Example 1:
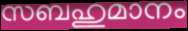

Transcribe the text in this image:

സബഹുമാനം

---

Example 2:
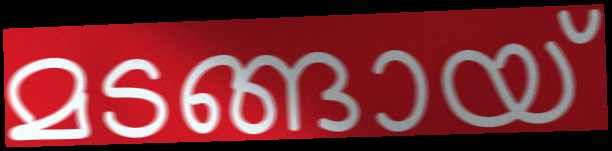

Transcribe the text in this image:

മടങ്ങായ്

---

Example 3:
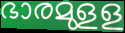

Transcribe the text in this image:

ഭാരമുളള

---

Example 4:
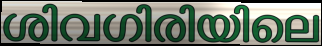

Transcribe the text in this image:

ശിവഗിരിയിലെ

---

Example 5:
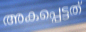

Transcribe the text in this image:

അകപ്പെട്ടത്